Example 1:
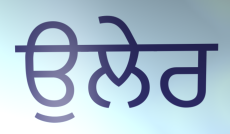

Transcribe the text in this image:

ਉਲੇਰ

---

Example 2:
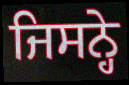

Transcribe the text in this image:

ਜਿਸਨ੍ਹੇ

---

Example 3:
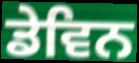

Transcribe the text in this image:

ਡੇਵਿਨ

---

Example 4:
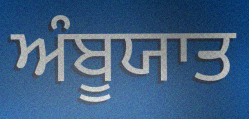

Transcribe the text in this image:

ਅੰਬੂਯਾਤ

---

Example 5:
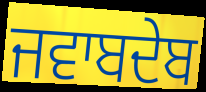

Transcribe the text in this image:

ਜਵਾਬਦੇਬ